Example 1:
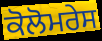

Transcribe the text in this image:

ਕੋਲੋਮਰੇਸ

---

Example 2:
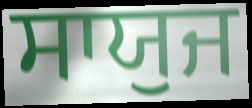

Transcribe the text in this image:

ਸਾਯੁਜ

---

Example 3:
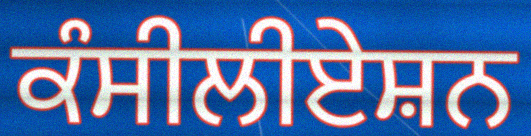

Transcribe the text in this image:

ਕੰਸੀਲੀਏਸ਼ਨ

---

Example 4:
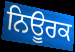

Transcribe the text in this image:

ਨਿਊਰਕ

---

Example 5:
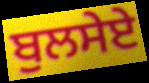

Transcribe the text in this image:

ਬੁਲਸੇਏ